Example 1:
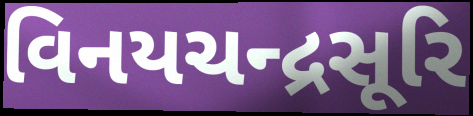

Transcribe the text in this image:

વિનયચન્દ્રસૂરિ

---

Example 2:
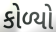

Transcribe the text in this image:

કોળ્યો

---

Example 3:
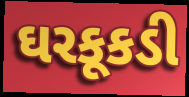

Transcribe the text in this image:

ઘરકૂકડી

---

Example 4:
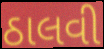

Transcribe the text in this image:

ઠાલવી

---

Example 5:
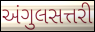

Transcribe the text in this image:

અંગુલસત્તરી